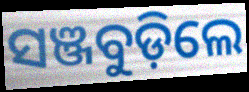
ସଞ୍ଜବୁଡ଼ିଲେ